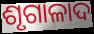
ଶୃଗାଳାଦ